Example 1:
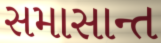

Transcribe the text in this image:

સમાસાન્ત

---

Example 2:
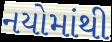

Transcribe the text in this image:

નયોમાંથી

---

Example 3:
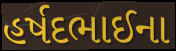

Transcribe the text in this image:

હર્ષદભાઈના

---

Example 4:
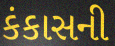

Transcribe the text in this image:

કંકાસની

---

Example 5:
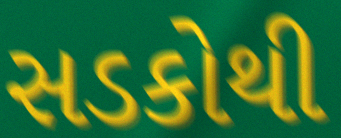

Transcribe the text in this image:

સડકોથી